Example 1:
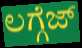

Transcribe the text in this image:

ಲಗ್ಗೆಜ್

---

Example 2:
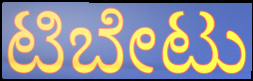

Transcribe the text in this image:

ಟಿಬೇಟು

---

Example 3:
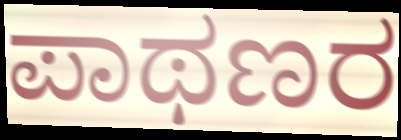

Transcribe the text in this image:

ಪಾಥಣರ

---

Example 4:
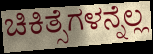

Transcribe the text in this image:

ಚಿಕಿತ್ಸೆಗಳನ್ನೆಲ್ಲ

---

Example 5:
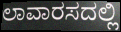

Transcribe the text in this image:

ಲಾವಾರಸದಲ್ಲಿ